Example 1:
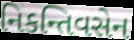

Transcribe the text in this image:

નિકન્તિવસેન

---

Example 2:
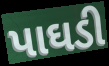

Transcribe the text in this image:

પાઘડી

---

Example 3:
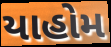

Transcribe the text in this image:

યાહોમ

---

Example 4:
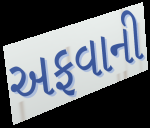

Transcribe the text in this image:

અફવાની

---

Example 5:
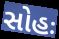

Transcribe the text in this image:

સોહઃ